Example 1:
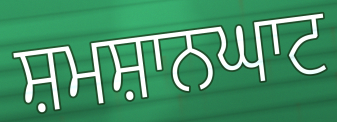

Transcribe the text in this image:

ਸ਼ਮਸ਼ਾਨਘਾਟ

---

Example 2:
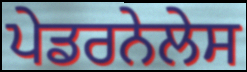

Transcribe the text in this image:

ਪੇਡਰਨੇਲੇਸ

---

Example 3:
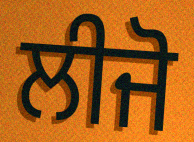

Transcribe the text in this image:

ਲੀਜੋ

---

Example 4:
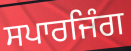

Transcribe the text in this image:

ਸਪਾਰਜਿੰਗ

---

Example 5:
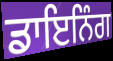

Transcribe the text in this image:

ਡਾਇਨਿੰਗ